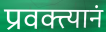
प्रवक्त्यानं